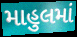
માહુલમાં